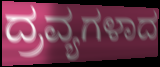
ದ್ರವ್ಯಗಳಾದ